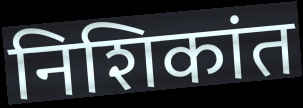
निशिकांत